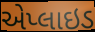
એપ્લાઇડ